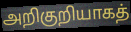
அறிகுறியாகத்